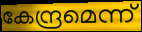
കേന്ദ്രമെന്ന്